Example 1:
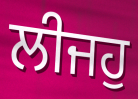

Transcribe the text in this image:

ਲੀਜਹੁ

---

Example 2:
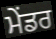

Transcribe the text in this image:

ਮੇਂਡਰ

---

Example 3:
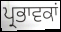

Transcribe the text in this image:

ਪ੍ਰਭਾਵਕਾਂ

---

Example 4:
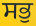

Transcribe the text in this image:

ਸਭੁ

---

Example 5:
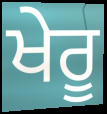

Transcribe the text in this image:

ਖੇਰੂ